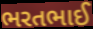
ભરતભાઈ